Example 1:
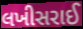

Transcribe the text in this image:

લખીસરાઈ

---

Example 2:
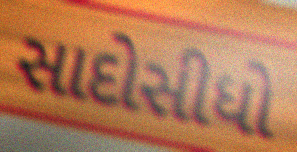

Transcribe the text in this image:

સાદોસીધો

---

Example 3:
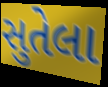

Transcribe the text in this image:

સુતેલા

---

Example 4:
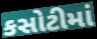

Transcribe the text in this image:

કસોટીમાં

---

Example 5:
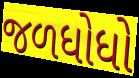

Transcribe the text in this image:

જળધોધો